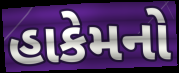
હાકેમનો